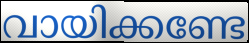
വായിക്കണ്ടേ